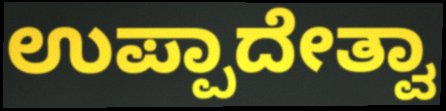
ಉಪ್ಪಾದೇತ್ವಾ